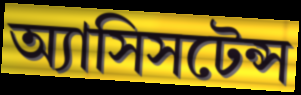
অ্যাসিসটেন্স